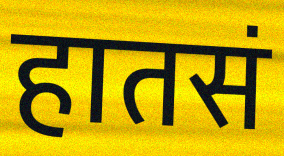
हातसं